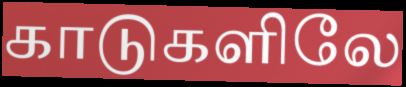
காடுகளிலே